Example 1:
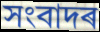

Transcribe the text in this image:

সংবাদৰ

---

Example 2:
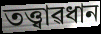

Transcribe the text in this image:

তত্ত্বাৱধান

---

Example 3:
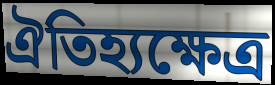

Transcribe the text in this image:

ঐতিহ্যক্ষেত্ৰ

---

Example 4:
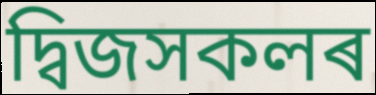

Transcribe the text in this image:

দ্বিজসকলৰ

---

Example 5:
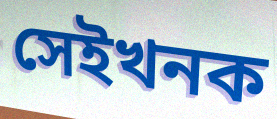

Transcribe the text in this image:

সেইখনক